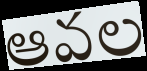
ఆవల